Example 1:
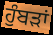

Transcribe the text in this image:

ਹੁੰਬੜਾਂ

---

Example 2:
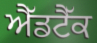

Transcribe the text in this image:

ਐੱਡਟੈੱਕ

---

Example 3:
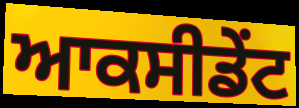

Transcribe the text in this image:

ਆਕਸੀਡੇਂਟ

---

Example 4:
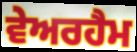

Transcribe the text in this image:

ਵੇਅਰਹੈਮ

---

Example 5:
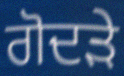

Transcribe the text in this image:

ਗੋਦੜੇ